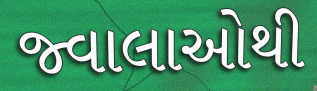
જ્વાલાઓથી